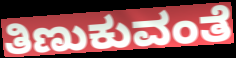
ತಿಣುಕುವಂತೆ